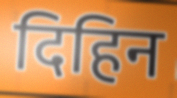
दिहिन